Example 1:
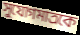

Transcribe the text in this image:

সুযোগমাত্রকে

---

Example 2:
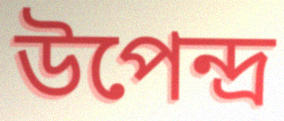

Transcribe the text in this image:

উপেন্দ্র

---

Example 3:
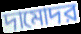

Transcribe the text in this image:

দামোদর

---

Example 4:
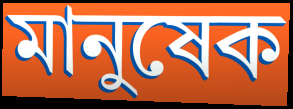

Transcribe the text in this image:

মানুষেক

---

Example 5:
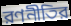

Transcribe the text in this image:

রণনীতির